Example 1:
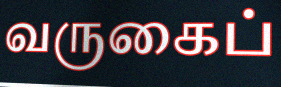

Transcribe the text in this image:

வருகைப்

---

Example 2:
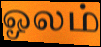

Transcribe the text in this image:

ஓலம்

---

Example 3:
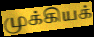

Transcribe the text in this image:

முக்கியக்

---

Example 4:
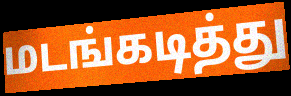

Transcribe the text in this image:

மடங்கடித்து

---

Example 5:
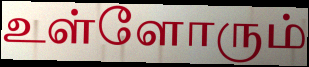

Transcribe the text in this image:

உள்ளோரும்